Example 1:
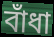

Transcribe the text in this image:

বাঁধা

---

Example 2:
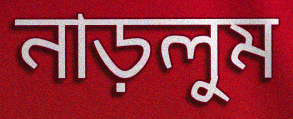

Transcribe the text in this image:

নাড়লুম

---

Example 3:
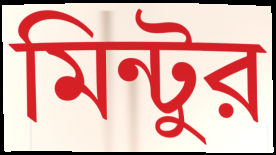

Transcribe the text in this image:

মিন্টুর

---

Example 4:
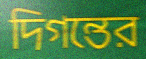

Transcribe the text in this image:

দিগন্তের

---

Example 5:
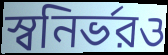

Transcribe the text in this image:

স্বনির্ভরও